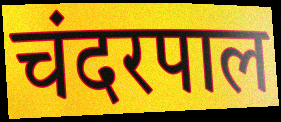
चंदरपाल